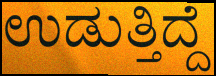
ಉಡುತ್ತಿದ್ದೆ